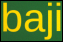
baji